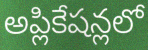
అప్లికేషన్లలో